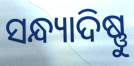
ସନ୍ଧ୍ୟାଦିଷ୍ଣୁ